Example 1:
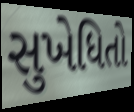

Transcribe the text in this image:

સુખેધિતો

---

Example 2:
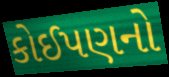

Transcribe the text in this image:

કોઈપણનો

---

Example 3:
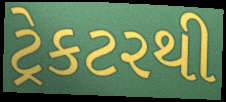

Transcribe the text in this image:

ટ્રેકટરથી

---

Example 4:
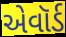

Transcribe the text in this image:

એવૉર્ડ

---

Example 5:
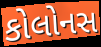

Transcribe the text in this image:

કોલોનસ